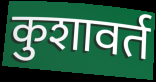
कुशावर्त